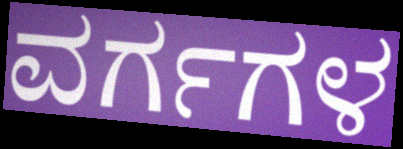
ವರ್ಗಗಳ